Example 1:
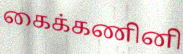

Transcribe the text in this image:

கைக்கணினி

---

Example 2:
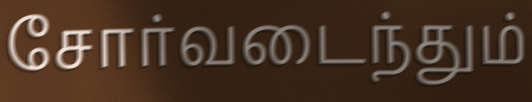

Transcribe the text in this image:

சோர்வடைந்தும்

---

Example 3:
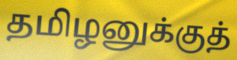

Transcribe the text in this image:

தமிழனுக்குத்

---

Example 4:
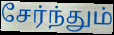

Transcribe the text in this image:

சேர்ந்தும்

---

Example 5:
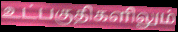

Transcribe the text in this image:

உட்பகுதிகளிலும்